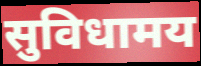
सुविधामय